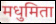
मधुमिता